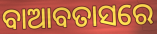
ବାଆବତାସରେ